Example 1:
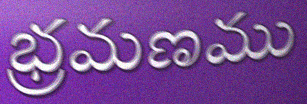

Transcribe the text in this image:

భ్రమణము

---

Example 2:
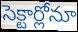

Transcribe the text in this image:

సెక్టార్లోనూ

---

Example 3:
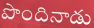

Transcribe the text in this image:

పొందినాడు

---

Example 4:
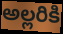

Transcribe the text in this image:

అల్లరికి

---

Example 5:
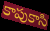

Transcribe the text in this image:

కాపుకాసి